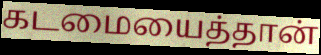
கடமையைத்தான்